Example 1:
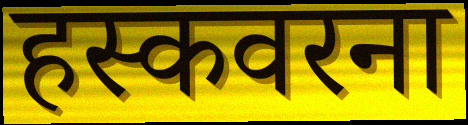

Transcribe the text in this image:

हस्कवरना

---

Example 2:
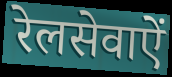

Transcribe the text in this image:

रेलसेवाऐं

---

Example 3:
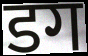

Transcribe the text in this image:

डग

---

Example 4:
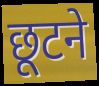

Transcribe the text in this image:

छूटने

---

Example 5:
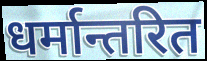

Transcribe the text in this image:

धर्मान्तरित